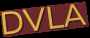
DVLA